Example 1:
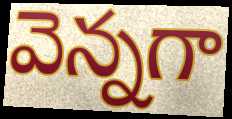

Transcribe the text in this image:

వెన్నగా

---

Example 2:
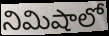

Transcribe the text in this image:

నిమిషాలో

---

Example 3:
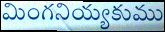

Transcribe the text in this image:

మింగనియ్యకుము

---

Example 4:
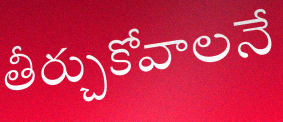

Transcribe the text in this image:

తీర్చుకోవాలనే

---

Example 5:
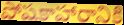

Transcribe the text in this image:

పోషకాహారానికి